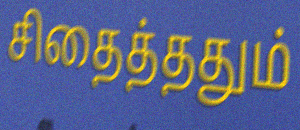
சிதைத்ததும்